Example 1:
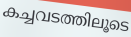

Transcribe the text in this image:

കച്ചവടത്തിലൂടെ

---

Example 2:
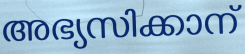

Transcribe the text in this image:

അഭ്യസിക്കാന്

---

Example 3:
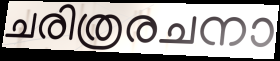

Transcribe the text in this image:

ചരിത്രരചനാ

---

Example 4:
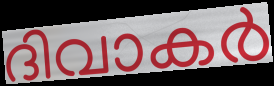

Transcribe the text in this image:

ദിവാകർ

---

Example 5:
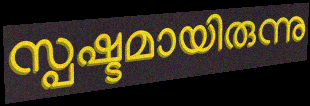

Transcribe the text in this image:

സ്പഷ്ടമായിരുന്നു